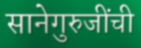
सानेगुरुजींची